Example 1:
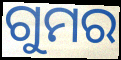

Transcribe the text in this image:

ଗୁମର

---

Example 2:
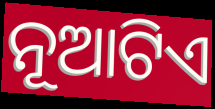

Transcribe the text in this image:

ନୂଆଟିଏ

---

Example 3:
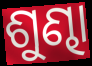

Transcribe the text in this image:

ଶୁଣ୍ଢା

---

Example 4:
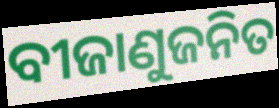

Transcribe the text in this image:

ବୀଜାଣୁଜନିତ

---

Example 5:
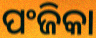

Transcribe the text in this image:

ପଂଜିକା